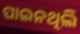
ପାଇନଥିଲି